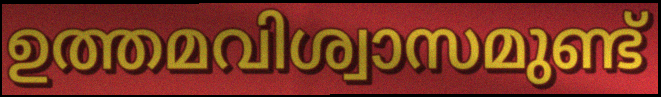
ഉത്തമവിശ്വാസമുണ്ട്